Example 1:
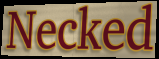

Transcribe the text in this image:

Necked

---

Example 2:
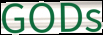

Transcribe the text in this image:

GODs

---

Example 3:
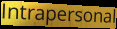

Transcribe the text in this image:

Intrapersonal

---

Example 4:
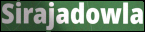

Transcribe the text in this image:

Sirajadowla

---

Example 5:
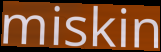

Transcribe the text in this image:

miskin